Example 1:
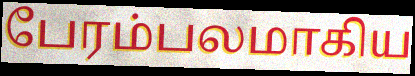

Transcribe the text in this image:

பேரம்பலமாகிய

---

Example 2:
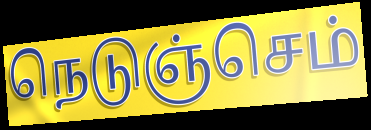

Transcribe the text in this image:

நெடுஞ்செம்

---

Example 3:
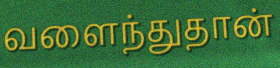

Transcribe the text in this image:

வளைந்துதான்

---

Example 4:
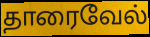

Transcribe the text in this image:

தாரைவேல்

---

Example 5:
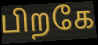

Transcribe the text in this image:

பிறகே